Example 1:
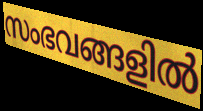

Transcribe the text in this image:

സംഭവങ്ങളിൽ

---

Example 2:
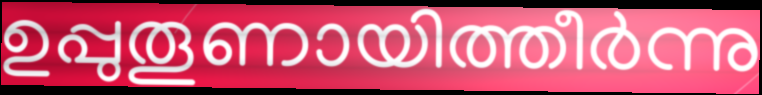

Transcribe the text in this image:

ഉപ്പുതൂണായിത്തീർന്നു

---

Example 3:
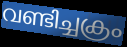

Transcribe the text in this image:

വണ്ടിച്ചക്രം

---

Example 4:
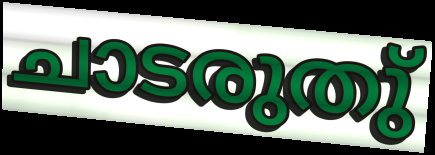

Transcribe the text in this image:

ചാടരുതു്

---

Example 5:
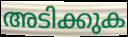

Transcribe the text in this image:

അടിക്കുക